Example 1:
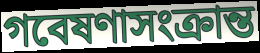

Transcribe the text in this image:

গবেষণাসংক্রান্ত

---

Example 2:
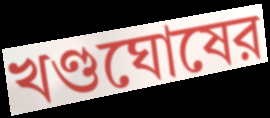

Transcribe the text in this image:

খণ্ডঘোষের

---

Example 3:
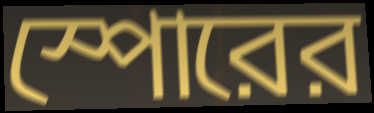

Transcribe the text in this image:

স্পোরের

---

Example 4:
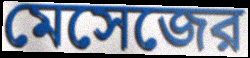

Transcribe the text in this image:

মেসেজের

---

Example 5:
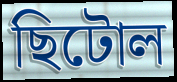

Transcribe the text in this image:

ছিটোল